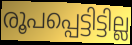
രൂപപ്പെട്ടിട്ടില്ല